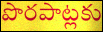
పొరపాట్లకు